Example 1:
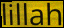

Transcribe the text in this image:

lillah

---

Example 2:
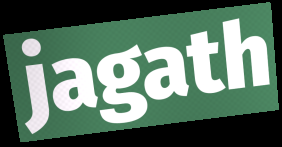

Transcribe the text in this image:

jagath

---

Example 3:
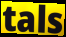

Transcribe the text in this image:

tals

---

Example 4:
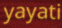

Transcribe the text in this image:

yayati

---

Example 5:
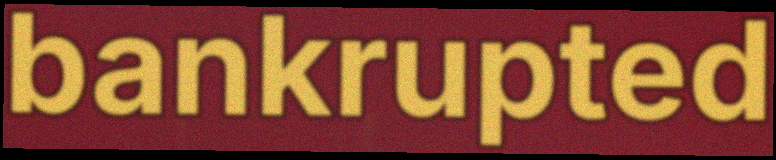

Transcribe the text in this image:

bankrupted